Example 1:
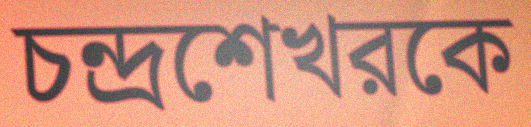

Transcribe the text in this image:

চন্দ্রশেখরকে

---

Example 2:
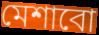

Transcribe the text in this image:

মেশাবো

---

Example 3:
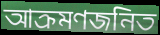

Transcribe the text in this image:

আক্রমণজনিত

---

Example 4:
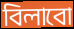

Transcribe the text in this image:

বিলাবো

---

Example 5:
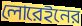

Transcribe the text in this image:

লোরেইনের